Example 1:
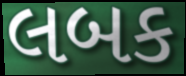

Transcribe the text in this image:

લબક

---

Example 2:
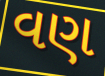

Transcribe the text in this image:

વણ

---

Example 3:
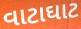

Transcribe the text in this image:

વાટાઘાટ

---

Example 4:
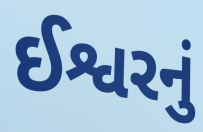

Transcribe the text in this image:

ઈશ્વરનું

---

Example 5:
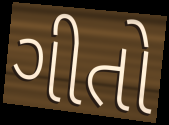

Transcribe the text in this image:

ગીતો